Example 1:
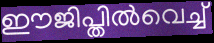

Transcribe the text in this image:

ഈജിപ്തിൽവെച്ച്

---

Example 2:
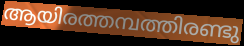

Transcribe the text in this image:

ആയിരത്തമ്പത്തിരണ്ടു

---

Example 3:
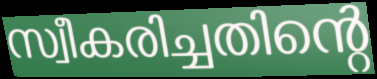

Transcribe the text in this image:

സ്വീകരിച്ചതിന്റെ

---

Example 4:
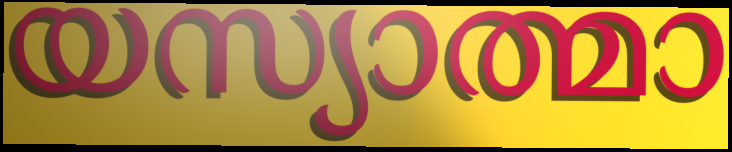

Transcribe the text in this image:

യസ്യാത്മാ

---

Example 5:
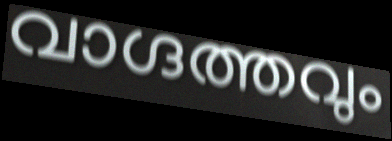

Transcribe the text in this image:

വാഗ്ദത്തവും